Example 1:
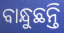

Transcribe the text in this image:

ବାନ୍ଧୁଛନ୍ତି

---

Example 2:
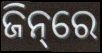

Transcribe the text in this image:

ଜିନ୍‌ରେ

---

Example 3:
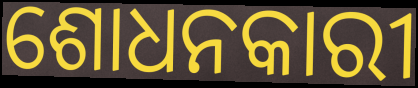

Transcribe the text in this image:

ଶୋଧନକାରୀ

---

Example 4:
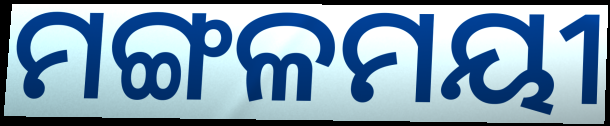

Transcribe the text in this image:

ମଙ୍ଗଳମୟୀ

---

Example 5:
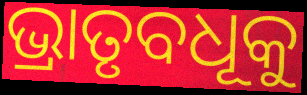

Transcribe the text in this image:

ଭ୍ରାତୃବଧୂକୁ